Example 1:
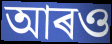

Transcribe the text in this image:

আৰও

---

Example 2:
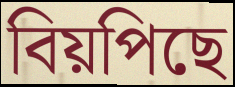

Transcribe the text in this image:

বিয়পিছে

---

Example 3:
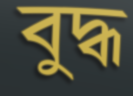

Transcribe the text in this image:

বুদ্ধ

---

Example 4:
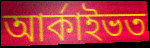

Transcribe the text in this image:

আৰ্কাইভত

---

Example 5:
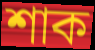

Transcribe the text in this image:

শাক